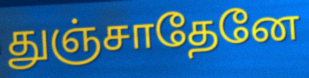
துஞ்சாதேனே